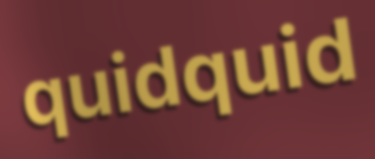
quidquid